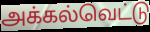
அக்கல்வெட்டு